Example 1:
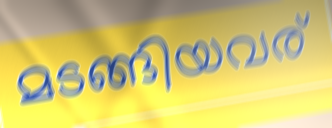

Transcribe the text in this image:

മടങ്ങിയവര്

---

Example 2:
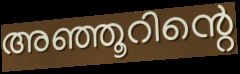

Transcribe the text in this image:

അഞ്ഞൂറിന്റെ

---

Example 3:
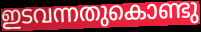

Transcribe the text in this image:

ഇടവന്നതുകൊണ്ടു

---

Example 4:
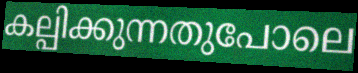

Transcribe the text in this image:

കല്പിക്കുന്നതുപോലെ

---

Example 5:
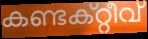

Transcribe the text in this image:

കണ്ടക്റ്റീവ്